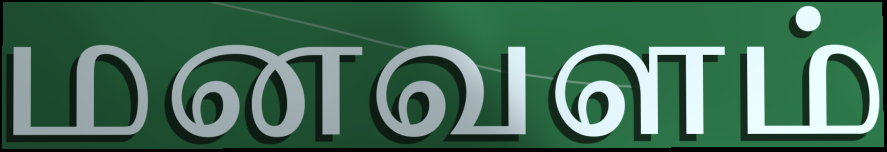
மனவளம்